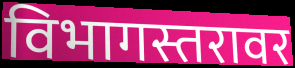
विभागस्तरावर